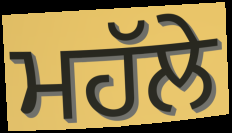
ਮਹੱਲੇ